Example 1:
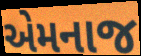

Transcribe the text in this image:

એમનાજ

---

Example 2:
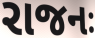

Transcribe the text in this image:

રાજનઃ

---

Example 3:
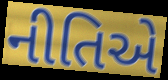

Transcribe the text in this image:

નીતિએ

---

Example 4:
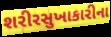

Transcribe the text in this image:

શરીરસુખાકારીના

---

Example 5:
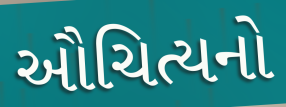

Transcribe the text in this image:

ઔચિત્યનો